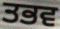
ਤਭਵ